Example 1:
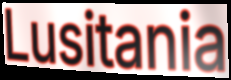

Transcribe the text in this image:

Lusitania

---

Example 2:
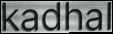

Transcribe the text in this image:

kadhal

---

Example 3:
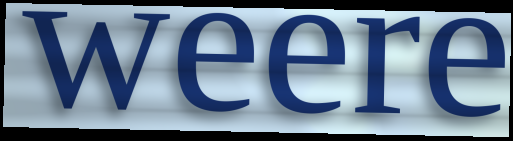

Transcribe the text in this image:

weere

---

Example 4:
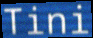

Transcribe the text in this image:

Tini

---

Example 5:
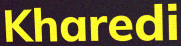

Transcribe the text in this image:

Kharedi